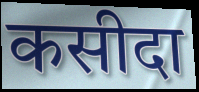
कसीदा